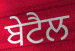
ਬੇਟੈਲ